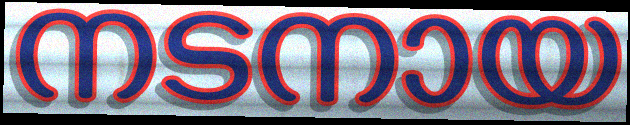
നടനായ